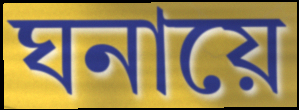
ঘনায়ে